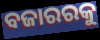
ବଜାରରକୁ